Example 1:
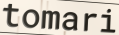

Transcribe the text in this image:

tomari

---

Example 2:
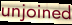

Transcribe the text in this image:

unjoined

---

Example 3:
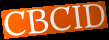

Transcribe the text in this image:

CBCID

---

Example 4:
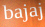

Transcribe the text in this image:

bajaj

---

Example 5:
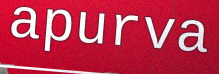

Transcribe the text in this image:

apurva